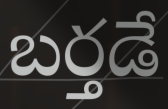
బర్తడే